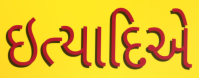
ઇત્યાદિએ